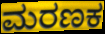
ಮರಣಕ